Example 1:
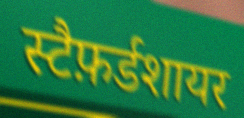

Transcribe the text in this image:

स्टैफ़र्डशायर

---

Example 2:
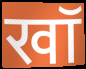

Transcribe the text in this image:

खॉ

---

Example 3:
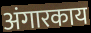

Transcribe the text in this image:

अंगारकाय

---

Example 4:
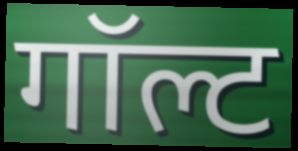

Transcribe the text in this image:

गॉल्ट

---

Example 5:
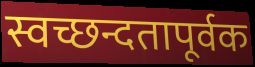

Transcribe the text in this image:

स्वच्छन्दतापूर्वक